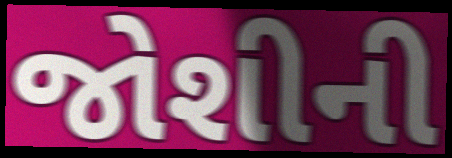
જોશીની